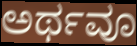
ಅರ್ಥವೂ